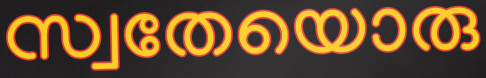
സ്വതേയൊരു